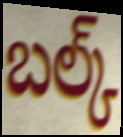
బల్క్